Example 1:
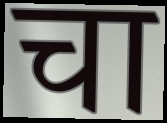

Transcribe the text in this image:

चा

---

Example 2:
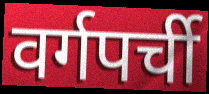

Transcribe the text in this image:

वर्गपर्ची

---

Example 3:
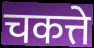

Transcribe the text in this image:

चकत्ते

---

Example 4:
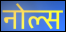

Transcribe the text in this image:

नोल्स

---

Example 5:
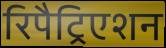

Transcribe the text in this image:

रिपैट्रिएशन